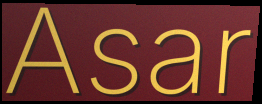
Asar